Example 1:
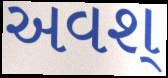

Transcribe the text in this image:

અવશ્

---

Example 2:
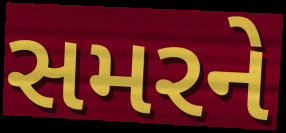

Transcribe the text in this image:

સમરને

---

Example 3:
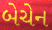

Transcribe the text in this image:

બેચેન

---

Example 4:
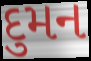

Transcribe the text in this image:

દુમન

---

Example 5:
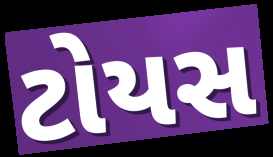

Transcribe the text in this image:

ટોયસ